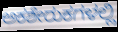
ಅಕಶೇರುಕಗಳಲ್ಲಿ